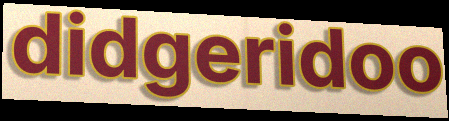
didgeridoo